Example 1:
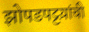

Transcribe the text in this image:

झोपडपट्टय़ांची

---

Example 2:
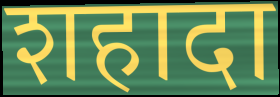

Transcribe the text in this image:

शहादा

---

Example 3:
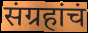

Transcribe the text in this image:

संग्रहांचं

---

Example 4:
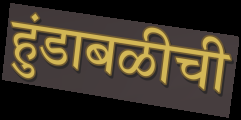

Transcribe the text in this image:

हुंडाबळीची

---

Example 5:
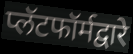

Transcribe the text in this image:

प्लॅटफॉर्मद्वारे